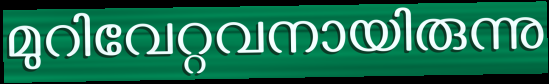
മുറിവേറ്റവനായിരുന്നു